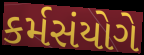
કર્મસંયોગે